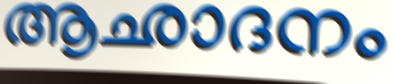
ആഛാദനം